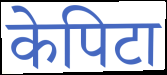
केपिटा